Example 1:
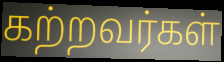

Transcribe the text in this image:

கற்றவர்கள்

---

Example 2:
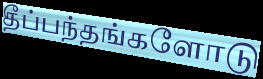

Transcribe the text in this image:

தீப்பந்தங்களோடு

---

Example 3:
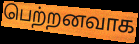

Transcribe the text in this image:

பெற்றனவாக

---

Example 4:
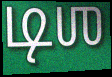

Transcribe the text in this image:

டிஶ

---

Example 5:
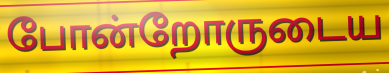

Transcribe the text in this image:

போன்றோருடைய